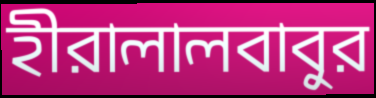
হীরালালবাবুর